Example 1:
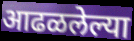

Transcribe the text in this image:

आढळलेल्या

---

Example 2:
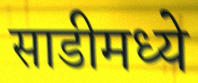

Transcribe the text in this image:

साडीमध्ये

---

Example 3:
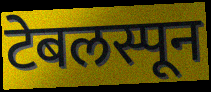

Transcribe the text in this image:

टेबलस्पून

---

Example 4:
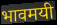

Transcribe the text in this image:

भावमयी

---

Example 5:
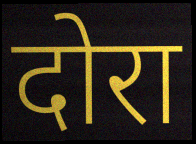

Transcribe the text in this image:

दोरा